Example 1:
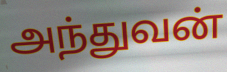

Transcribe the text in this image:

அந்துவன்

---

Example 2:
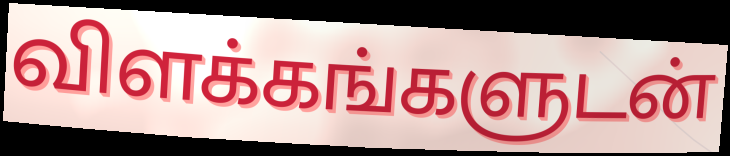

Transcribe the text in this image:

விளக்கங்களுடன்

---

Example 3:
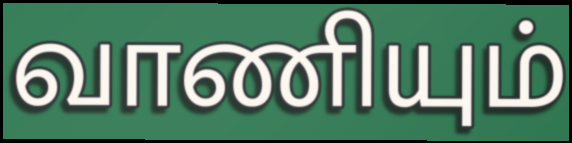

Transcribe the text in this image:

வாணியும்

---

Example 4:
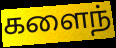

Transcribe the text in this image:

களைந்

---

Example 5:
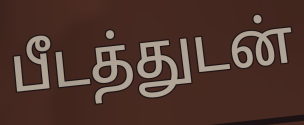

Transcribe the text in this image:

பீடத்துடன்